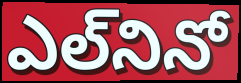
ఎల్‌నినో